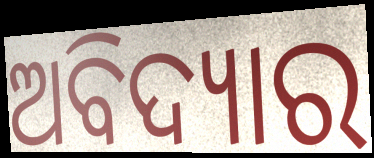
ଅବିଦ୍ୟାର